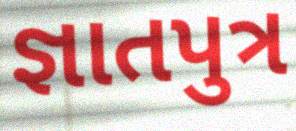
જ્ઞાતપુત્ર